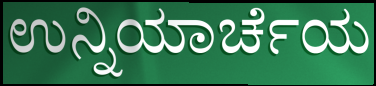
ಉನ್ನಿಯಾರ್ಚೆಯ